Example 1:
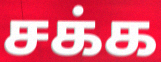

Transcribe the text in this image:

சக்க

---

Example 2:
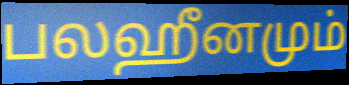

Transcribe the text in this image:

பலஹீனமும்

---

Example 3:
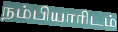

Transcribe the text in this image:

நம்பியாரிடம்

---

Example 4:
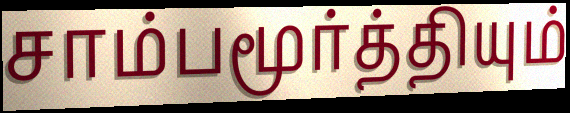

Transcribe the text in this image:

சாம்பமூர்த்தியும்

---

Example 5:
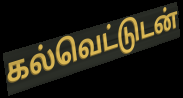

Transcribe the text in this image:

கல்வெட்டுடன்